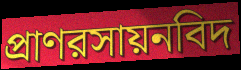
প্রাণরসায়নবিদ